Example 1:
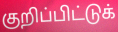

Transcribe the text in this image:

குறிப்பிட்டுக்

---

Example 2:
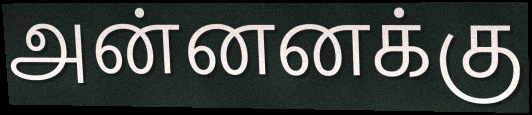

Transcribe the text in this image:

அன்னனக்கு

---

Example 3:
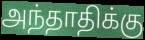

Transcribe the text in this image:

அந்தாதிக்கு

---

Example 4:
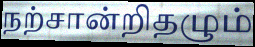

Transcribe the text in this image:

நற்சான்றிதழும்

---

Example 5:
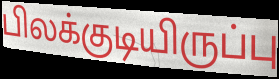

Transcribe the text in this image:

பிலக்குடியிருப்பு